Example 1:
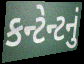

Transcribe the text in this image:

કન્ટેન્ટનું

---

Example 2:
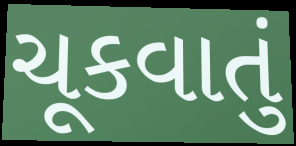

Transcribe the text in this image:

ચૂકવાતું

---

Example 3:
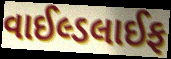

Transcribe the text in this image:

વાઈલ્ડલાઈફ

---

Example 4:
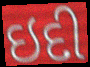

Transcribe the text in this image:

ઇદી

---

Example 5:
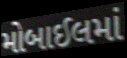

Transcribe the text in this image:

મોબાઈલમાં